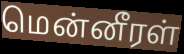
மென்னீரள்